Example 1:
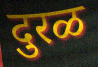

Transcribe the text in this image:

दुरळ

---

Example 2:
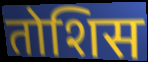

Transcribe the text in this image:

तोशिस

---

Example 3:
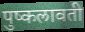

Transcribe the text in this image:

पुष्कलावती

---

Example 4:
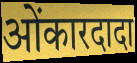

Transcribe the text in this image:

ओंकारदादा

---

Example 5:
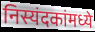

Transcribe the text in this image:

निस्यंदकांमध्ये